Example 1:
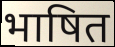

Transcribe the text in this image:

भाषित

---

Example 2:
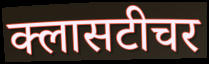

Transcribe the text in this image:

क्लासटीचर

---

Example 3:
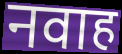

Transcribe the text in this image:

नवाह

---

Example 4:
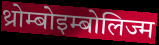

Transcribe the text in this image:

थ्रोम्बोइम्बोलिज्म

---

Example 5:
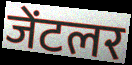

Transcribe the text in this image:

जेंटलर